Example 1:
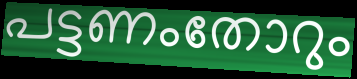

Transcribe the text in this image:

പട്ടണംതോറും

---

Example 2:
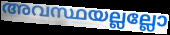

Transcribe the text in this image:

അവസ്ഥയല്ലല്ലോ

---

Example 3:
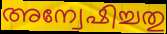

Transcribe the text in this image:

അന്വേഷിച്ചതു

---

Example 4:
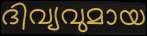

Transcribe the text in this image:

ദിവ്യവുമായ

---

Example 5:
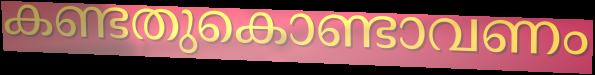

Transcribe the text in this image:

കണ്ടതുകൊണ്ടാവണം